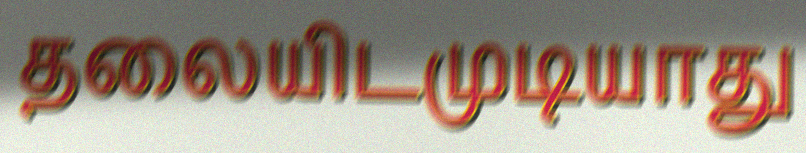
தலையிடமுடியாது